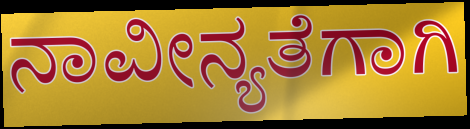
ನಾವೀನ್ಯತೆಗಾಗಿ